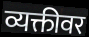
व्यक्तीवर